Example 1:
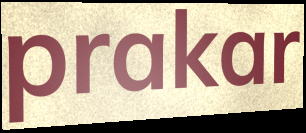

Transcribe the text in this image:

prakar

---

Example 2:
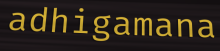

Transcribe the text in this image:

adhigamana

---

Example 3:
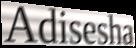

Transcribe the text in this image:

Adisesha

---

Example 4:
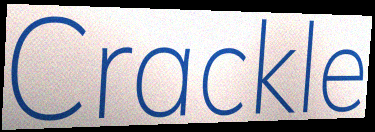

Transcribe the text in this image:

Crackle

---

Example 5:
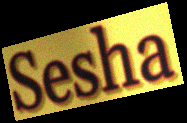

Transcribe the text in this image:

Sesha